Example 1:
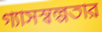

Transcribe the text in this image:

গ্যাসস্বল্পতার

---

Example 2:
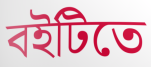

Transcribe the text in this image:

বইটিতে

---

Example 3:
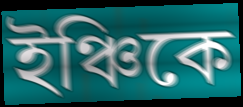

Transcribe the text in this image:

ইঞ্চিকে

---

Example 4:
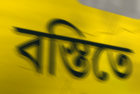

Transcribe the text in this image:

বস্তিতে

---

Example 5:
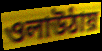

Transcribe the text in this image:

ওলাউঠায়